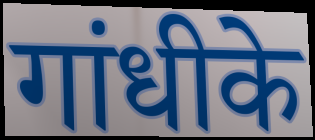
गांधीके